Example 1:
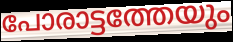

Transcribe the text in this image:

പോരാട്ടത്തേയും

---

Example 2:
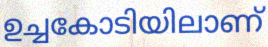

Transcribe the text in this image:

ഉച്ചകോടിയിലാണ്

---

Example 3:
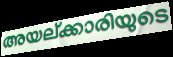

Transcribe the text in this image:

അയല്ക്കാരിയുടെ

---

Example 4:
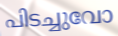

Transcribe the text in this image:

പിടച്ചുവോ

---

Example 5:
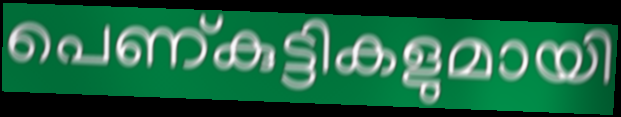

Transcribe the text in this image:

പെണ്കുട്ടികളുമായി